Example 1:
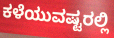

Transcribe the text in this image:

ಕಳೆಯುವಷ್ಟರಲ್ಲಿ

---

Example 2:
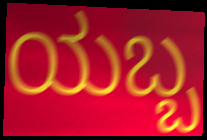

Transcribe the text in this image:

ಯಬ್ಬ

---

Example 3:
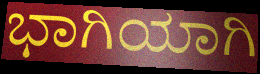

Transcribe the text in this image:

ಭಾಗಿಯಾಗಿ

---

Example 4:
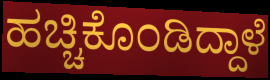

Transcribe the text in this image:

ಹಚ್ಚಿಕೊಂಡಿದ್ದಾಳೆ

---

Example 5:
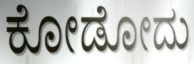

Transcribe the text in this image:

ಕೋಡೋದು